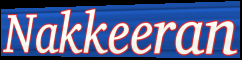
Nakkeeran